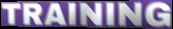
TRAINING